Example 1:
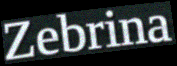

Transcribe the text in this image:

Zebrina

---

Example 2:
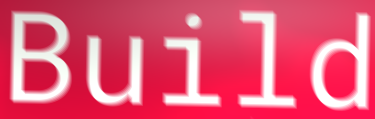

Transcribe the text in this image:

Build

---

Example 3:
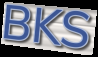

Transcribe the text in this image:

BKS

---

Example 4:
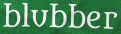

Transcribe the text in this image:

blubber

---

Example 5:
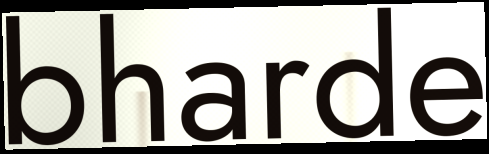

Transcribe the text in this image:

bharde